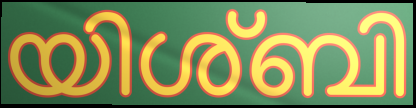
യിശ്ബി